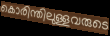
കൊരിന്തിലുള്ളവരുടെ